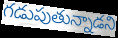
గడుపుతున్నాడని